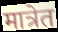
मात्रेत